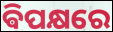
ଵିପକ୍ଷରେ